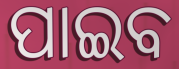
ପାଇବ